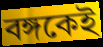
বঙ্গকেই